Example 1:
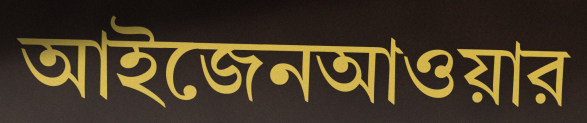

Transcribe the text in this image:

আইজেনআওয়ার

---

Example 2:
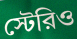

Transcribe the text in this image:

স্টেরিও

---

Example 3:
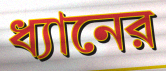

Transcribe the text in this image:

ধ্যানের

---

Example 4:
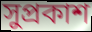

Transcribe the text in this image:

সুপ্রকাশ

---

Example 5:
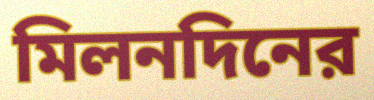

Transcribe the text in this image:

মিলনদিনের